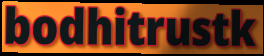
bodhitrustk